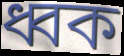
ধ্বক